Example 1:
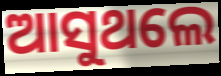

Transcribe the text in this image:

ଆସୁଥଲେ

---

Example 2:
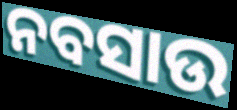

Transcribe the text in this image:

ନବସାଉ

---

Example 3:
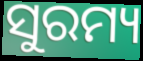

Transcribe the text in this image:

ସୁରମ୍ୟ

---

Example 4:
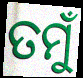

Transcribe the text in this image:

ତମୁଁ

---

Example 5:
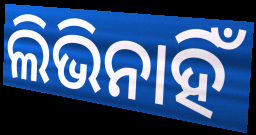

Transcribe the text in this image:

ଲିଭିନାହିଁ